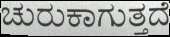
ಚುರುಕಾಗುತ್ತದೆ